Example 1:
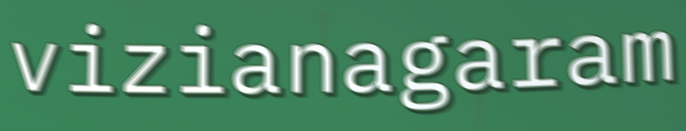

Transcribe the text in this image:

vizianagaram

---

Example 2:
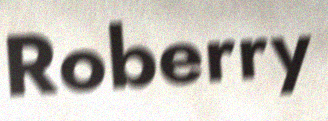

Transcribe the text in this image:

Roberry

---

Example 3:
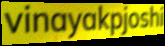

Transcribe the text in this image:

vinayakpjoshi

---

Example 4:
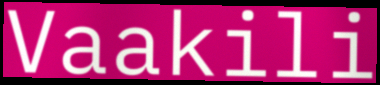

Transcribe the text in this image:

Vaakili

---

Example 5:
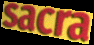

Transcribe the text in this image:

sacra